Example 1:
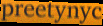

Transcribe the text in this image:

preetynyc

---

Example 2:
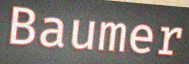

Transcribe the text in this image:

Baumer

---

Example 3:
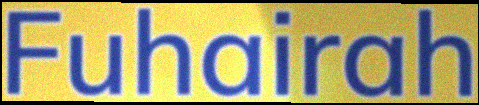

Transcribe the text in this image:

Fuhairah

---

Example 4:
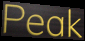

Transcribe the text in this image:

Peak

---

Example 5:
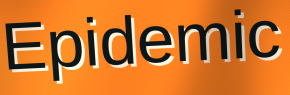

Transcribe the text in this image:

Epidemic